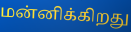
மன்னிக்கிறது